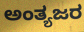
ಅಂತ್ಯಜರ